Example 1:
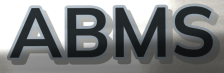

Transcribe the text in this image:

ABMS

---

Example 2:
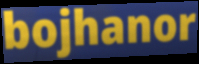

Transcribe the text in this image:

bojhanor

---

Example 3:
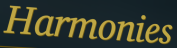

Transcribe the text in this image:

Harmonies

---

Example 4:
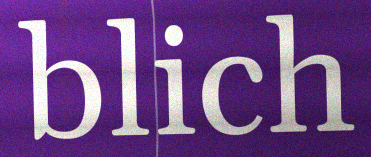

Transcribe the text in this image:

blich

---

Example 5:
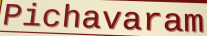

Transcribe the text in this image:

Pichavaram